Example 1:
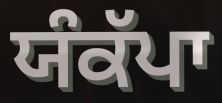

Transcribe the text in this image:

ਯੰਕੱਪਾ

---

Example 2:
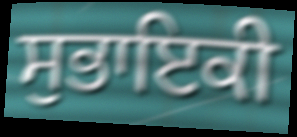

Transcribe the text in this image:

ਸੁਭਾਇਕੀ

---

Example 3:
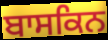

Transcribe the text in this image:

ਬਾਸਕਿਨ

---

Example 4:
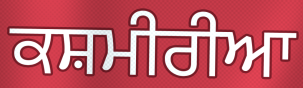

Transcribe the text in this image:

ਕਸ਼ਮੀਰੀਆ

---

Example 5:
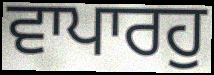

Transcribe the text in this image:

ਵਾਪਾਰਹੁ